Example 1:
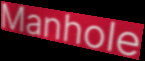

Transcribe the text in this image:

Manhole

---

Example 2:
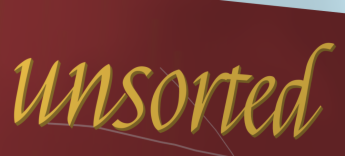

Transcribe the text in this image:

unsorted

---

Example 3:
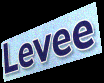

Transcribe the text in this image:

Levee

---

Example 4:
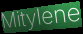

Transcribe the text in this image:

Mitylene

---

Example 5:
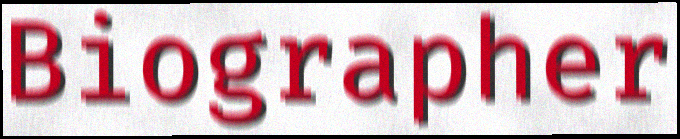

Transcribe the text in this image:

Biographer